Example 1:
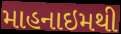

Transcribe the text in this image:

માહનાઇમથી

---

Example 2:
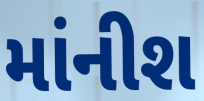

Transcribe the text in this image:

માંનીશ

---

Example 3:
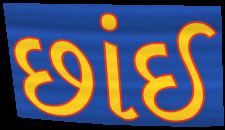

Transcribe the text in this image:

છાંઈ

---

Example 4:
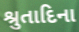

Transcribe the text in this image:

શ્રુતાદિના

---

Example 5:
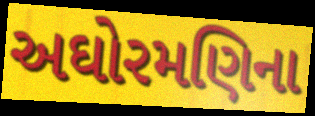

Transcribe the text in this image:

અઘોરમણિના